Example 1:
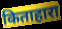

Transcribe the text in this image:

किताहारा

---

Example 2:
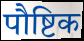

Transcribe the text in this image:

पौष्टिक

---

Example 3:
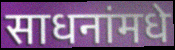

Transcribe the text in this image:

साधनांमधे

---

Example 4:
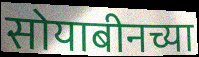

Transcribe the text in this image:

सोयाबीनच्या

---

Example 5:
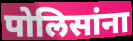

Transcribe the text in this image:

पोलिसांना